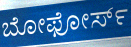
ಬೋಫೋರ್ಸ್